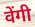
वेंगी